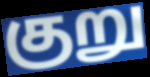
குறு